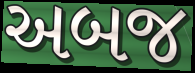
અબજ